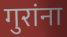
गुरांना